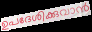
ഉപദേശിക്കുവാൻ